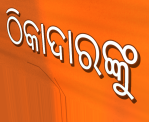
ଠିକାଦାରଙ୍କୁ